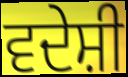
ਵਦੇਸ਼ੀ